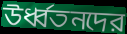
উর্ধ্বতনদের